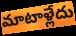
మాటాళ్లేదు